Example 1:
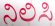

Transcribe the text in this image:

ನಿಲಿಸಿ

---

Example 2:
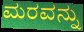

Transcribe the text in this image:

ಮರವನ್ನು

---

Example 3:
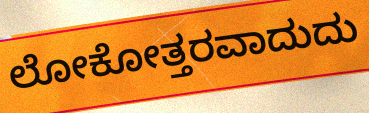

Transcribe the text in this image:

ಲೋಕೋತ್ತರವಾದುದು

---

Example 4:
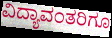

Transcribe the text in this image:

ವಿದ್ಯಾವಂತರಿಗೂ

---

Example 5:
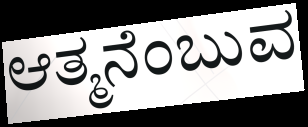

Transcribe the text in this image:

ಆತ್ಮನೆಂಬುವ